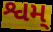
શ્વમ્